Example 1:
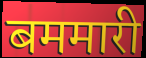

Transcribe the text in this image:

बममारी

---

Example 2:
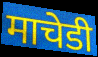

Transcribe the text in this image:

माचेडी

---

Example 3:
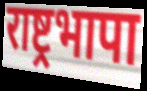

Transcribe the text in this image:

राष्ट्रभापा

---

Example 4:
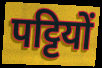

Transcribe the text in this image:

पट्टियों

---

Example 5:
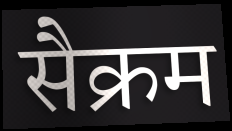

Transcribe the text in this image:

सैक्रम